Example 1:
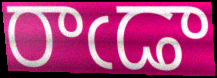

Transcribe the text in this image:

రాఁడా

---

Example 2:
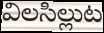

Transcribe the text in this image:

విలసిల్లుట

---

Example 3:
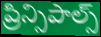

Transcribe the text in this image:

ప్రిన్సిపాల్స్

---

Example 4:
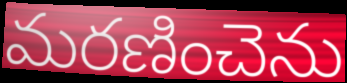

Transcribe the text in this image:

మరణించెను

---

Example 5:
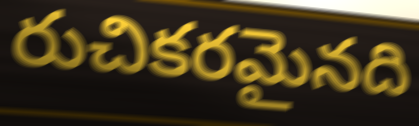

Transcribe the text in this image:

రుచికరమైనది